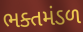
ભક્તમંડળ